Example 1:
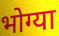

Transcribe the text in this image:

भोग्या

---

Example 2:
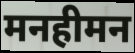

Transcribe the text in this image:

मनहीमन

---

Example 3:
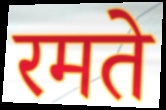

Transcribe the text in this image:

रमते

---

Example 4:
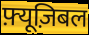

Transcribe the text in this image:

फ़्यूज़िबल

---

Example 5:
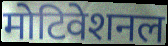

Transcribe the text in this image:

मोटिवेशनल